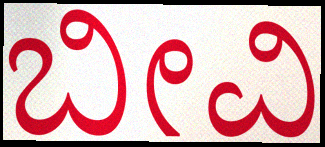
ಬೀವಿ